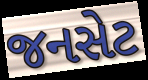
જનસેટ